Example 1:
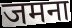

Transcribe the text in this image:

जमना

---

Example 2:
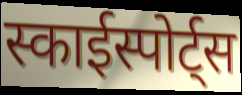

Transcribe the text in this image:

स्काईस्पोर्ट्स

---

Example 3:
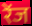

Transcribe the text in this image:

रेंज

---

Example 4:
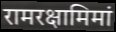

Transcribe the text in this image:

रामरक्षामिमां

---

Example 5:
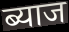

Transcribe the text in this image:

ब्याज